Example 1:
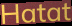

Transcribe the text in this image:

Hatat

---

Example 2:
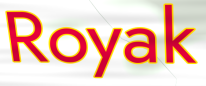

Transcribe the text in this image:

Royak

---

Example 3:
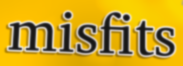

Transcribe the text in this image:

misfits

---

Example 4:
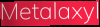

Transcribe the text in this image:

Metalaxyl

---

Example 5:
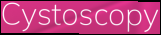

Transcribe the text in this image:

Cystoscopy